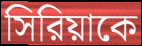
সিরিয়াকে